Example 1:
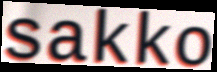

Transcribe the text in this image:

sakko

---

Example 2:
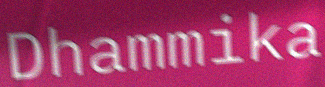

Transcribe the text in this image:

Dhammika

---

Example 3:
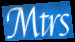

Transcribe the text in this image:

Mtrs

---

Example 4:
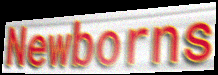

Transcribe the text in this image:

Newborns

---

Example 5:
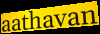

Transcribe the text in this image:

aathavan